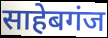
साहेबगंज